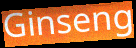
Ginseng